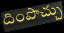
దింపొచ్చు